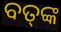
ବତ୍‍ଙ୍କ